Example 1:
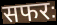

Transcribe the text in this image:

सफरः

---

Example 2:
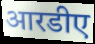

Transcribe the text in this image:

आरडीए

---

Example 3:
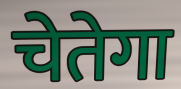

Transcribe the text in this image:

चेतेगा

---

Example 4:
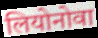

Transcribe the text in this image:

लियोनोवा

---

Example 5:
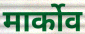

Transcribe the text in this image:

मार्कोव